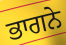
ਭਾਗਨੇ